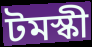
টমস্কী